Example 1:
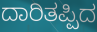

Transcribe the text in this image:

ದಾರಿತಪ್ಪಿದ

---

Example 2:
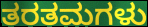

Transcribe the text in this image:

ತರತಮಗಳು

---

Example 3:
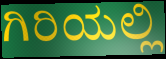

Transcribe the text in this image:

ಗಿರಿಯಲ್ಲಿ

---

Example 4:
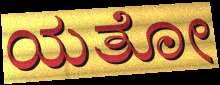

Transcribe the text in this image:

ಯತೋ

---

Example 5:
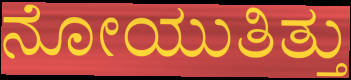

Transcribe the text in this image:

ನೋಯುತಿತ್ತು